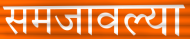
समजावल्या